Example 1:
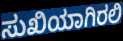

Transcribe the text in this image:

ಸುಖಿಯಾಗಿರಲಿ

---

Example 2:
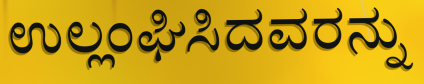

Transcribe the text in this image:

ಉಲ್ಲಂಘಿಸಿದವರನ್ನು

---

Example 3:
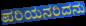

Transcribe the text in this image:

ಪರಿಯನರಿದನು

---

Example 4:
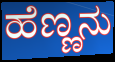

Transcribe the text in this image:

ಹೆಣ್ಣನು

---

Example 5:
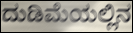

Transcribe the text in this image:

ದುಡಿಮೆಯಲ್ಲಿನ